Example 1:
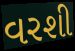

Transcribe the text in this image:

વરશી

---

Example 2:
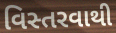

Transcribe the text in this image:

વિસ્તરવાથી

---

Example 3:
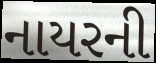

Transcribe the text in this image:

નાયરની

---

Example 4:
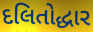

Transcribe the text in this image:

દલિતોદ્ધાર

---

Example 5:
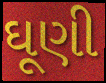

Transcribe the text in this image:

ઘૂણી